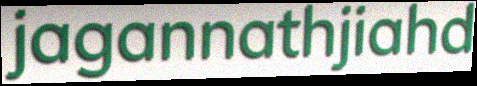
jagannathjiahd